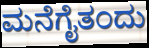
ಮನೆಗೈತಂದು